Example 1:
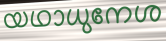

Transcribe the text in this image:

യഥാധുനേശ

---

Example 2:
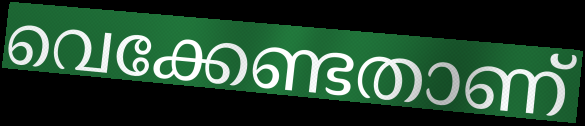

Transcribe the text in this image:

വെക്കേണ്ടതാണ്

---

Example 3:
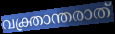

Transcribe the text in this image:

വക്ത്രാന്തരാത്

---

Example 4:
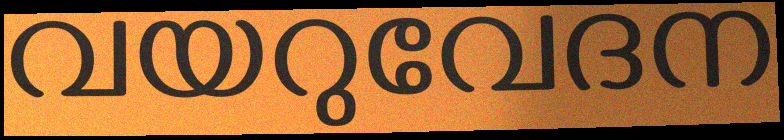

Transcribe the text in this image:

വയറുവേദന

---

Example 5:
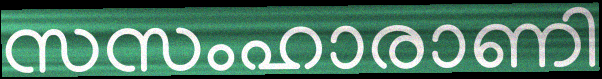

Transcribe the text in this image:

സസംഹാരാണി